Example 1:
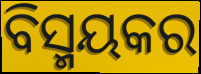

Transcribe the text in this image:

ବିସ୍ମୟକର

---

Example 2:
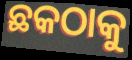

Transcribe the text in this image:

ଛକଠାକୁ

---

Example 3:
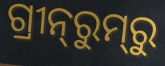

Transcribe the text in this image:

ଗ୍ରୀନ୍‌ରୁମ୍‌ରୁ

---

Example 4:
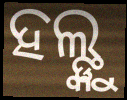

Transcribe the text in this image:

ହଲ୍ଙ୍କୁ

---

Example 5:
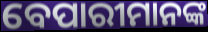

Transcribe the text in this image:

ବେପାରୀମାନଙ୍କ